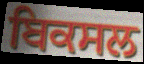
ਬਿਕਸਲ